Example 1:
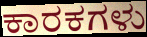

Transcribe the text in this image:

ಕಾರಕಗಳು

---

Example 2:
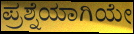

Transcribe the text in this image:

ಪ್ರಶ್ನೆಯಾಗಿಯೇ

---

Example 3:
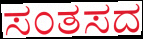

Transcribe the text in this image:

ಸಂತಸದ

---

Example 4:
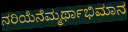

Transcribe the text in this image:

ನರಿಯೆನೆಮ್ಮರ್ಥಾಭಿಮಾನ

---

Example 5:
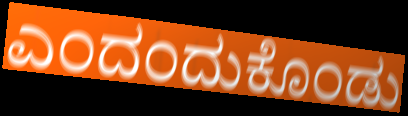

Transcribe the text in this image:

ಎಂದಂದುಕೊಂಡು